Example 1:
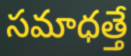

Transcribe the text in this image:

సమాధత్తే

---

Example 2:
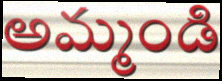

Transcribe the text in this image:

అమ్మండి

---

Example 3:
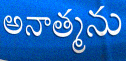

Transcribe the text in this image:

అనాత్మను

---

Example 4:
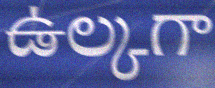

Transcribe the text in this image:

ఉల్కగా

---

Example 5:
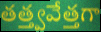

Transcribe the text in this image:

తత్త్వవేత్తగా